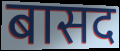
बासद